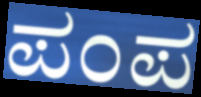
ಪಂಪ